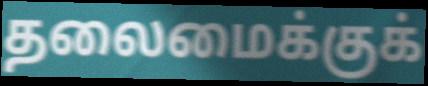
தலைமைக்குக்